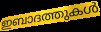
ഇബാദത്തുകൾ